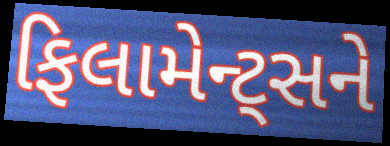
ફિલામેન્ટ્સને